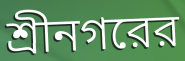
শ্রীনগরের